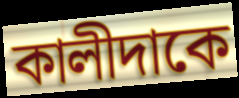
কালীদাকে